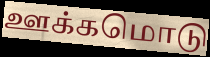
ஊக்கமொடு